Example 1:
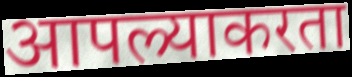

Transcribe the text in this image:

आपल्याकरता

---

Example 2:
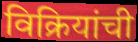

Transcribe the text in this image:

विक्रियांची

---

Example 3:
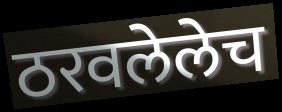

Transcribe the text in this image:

ठरवलेलेच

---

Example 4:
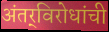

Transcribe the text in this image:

अंतर्विरोधांची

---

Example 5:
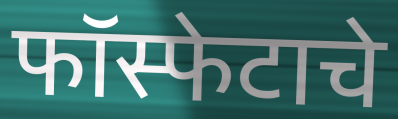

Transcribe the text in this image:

फॉस्फेटाचे